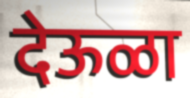
देऊळा